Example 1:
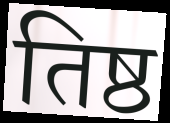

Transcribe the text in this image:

तिष्ठ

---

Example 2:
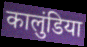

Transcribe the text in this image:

कालुंडिया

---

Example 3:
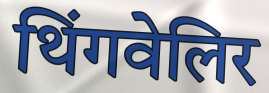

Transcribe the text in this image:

थिंगवेलिर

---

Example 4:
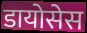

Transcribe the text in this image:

डायोसेस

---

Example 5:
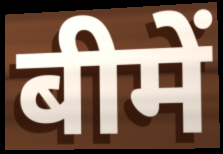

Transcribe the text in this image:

बीमें